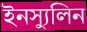
ইনস্যুলিন